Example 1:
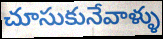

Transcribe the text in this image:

చూసుకునేవాళ్ళు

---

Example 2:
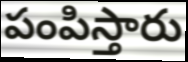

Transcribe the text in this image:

పంపిస్తారు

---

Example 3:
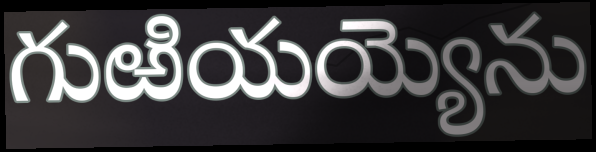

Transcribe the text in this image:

గుఱియయ్యెను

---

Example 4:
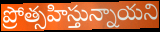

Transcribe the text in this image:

ప్రోత్సహిస్తున్నాయని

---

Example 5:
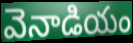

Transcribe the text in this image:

వెనాడియం